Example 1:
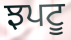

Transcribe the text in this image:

ਝਪਟੂ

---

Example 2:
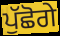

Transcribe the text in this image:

ਪੁੱਛੋਗੇ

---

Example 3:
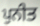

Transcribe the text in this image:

ਪੁਨੀਤ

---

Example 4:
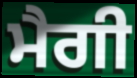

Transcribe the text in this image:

ਮੈਗੀ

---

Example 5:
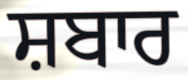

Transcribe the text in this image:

ਸ਼ਬਾਰ